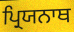
ਪ੍ਰਿਯਨਾਥ